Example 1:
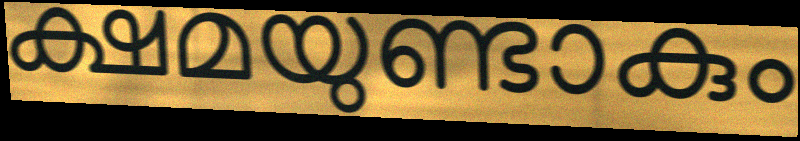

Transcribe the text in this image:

ക്ഷമയുണ്ടാകും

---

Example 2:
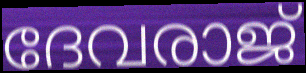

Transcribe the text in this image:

ദേവരാജ്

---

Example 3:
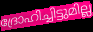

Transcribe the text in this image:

ദ്രോഹിച്ചിട്ടുമില്ല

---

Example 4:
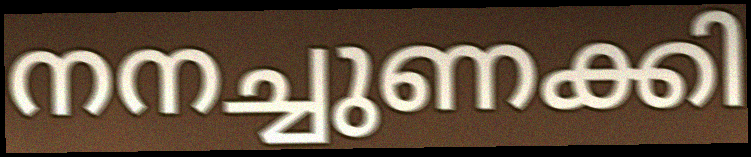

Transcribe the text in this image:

നനച്ചുണക്കി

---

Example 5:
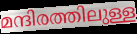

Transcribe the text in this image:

മന്ദിരത്തിലുള്ള